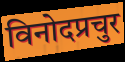
विनोदप्रचुर